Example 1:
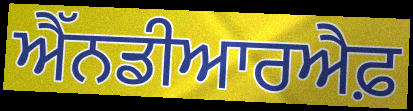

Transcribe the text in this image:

ਐੱਨਡੀਆਰਐਫ਼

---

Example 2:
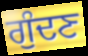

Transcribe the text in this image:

ਗੁੰਦਣ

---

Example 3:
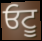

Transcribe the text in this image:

ਓਟੂ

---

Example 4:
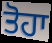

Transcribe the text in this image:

ਤੋਹਾ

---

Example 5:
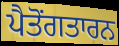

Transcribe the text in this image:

ਪੈਤੋਂਗਤਾਰਨ